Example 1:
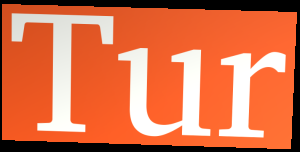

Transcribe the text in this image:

Tur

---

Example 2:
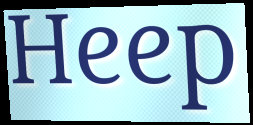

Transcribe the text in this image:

Heep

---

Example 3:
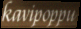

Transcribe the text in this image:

kavipoppu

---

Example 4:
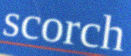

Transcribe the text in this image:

scorch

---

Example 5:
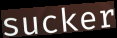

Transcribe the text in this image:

sucker